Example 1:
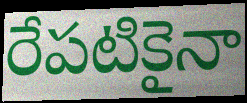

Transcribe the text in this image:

రేపటికైనా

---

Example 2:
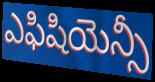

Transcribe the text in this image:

ఎఫిషియెన్సీ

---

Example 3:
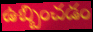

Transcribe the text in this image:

ఉబ్బించడం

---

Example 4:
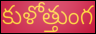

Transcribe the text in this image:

కుళోత్తుంగ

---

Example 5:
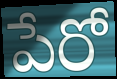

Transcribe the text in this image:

పేరో